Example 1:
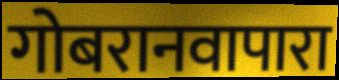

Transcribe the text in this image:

गोबरानवापारा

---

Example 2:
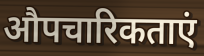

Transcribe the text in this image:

औपचारिकताएं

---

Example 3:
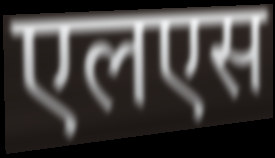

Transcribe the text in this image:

एलएस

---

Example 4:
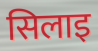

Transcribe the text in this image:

सिलाइ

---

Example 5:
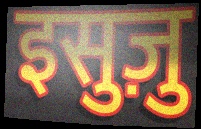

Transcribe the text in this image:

इसुज़ु